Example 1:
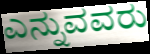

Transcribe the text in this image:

ಎನ್ನುವವರು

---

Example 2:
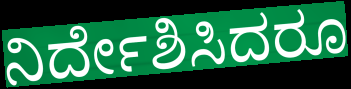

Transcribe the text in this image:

ನಿರ್ದೇಶಿಸಿದರೂ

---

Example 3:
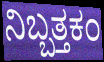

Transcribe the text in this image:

ನಿಬ್ಬತ್ತಕಂ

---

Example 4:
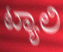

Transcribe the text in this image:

ಟ್ಯಾಲಿ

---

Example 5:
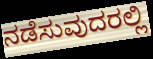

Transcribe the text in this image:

ನಡೆಸುವುದರಲ್ಲಿ